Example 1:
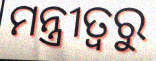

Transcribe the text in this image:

ମନ୍ତ୍ରୀତ୍ୱରୁ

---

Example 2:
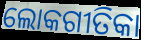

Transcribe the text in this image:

ଲୋକଗୀତିକା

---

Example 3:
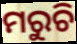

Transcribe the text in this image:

ମରୁଚି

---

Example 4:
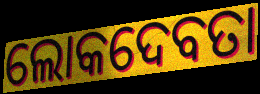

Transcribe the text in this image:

ଲୋକଦେବତା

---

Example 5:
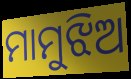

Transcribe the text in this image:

ମାମୁଝିଅ